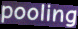
pooling